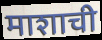
माशाची